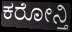
ಕರೋನ್ತಿ